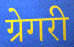
ग्रेगरी